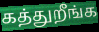
கத்துறீங்க